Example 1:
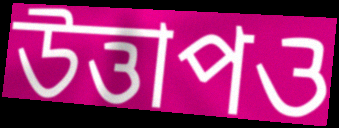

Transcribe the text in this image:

উত্তাপও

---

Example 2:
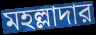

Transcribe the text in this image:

মহল্লাদার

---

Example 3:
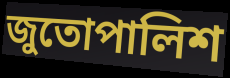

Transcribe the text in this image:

জুতোপালিশ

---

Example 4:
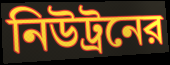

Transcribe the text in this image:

নিউট্রনের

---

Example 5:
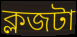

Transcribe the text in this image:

ক্লজটা